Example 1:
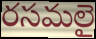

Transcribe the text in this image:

రసమలై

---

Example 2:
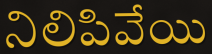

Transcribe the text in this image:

నిలిపివేయి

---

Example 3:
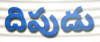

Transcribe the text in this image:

దిపుడు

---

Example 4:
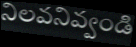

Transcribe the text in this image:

నిలవనివ్వండి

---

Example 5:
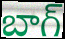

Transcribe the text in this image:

బాగ్